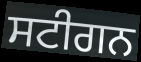
ਸਟੀਗਨ